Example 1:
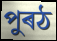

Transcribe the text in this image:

পুৰঠ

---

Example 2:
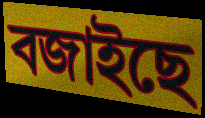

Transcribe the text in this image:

বজাইছে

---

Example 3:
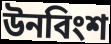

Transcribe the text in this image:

উনবিংশ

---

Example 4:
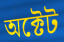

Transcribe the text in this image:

অক্টেট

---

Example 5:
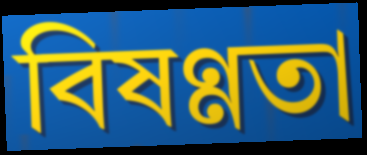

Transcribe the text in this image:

বিষণ্ণতা